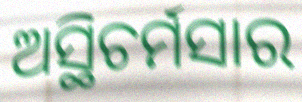
ଅସ୍ଥିଚର୍ମସାର